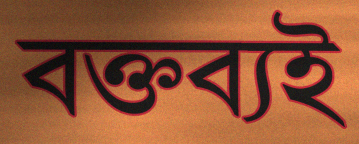
বক্তব্যই